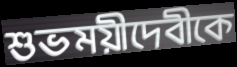
শুভময়ীদেবীকে